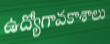
ఉద్యోగావకాశాలు